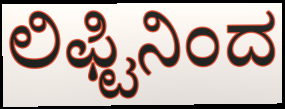
ಲಿಫ್ಟಿನಿಂದ